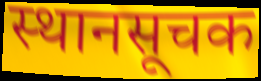
स्थानसूचक